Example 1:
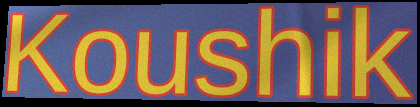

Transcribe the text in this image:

Koushik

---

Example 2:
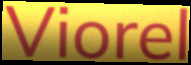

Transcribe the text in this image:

Viorel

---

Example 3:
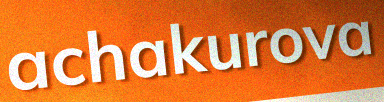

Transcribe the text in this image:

achakurova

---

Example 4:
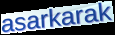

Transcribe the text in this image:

asarkarak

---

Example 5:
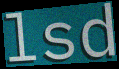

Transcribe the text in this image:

lsd